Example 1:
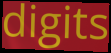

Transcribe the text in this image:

digits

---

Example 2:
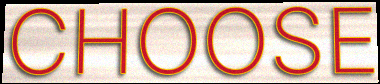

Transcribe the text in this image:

CHOOSE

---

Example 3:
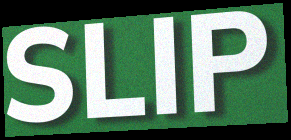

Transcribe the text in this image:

SLIP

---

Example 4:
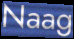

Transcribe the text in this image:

Naag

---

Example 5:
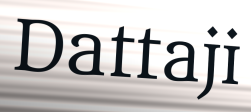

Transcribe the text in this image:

Dattaji